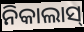
ନିକାଲାସ୍